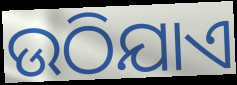
ଉଠିଯାଏ